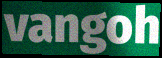
vangoh